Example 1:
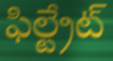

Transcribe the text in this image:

ఫిల్ట్రేట్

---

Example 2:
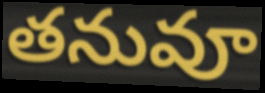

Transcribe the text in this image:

తనువూ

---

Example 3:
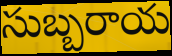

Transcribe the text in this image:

సుబ్బరాయ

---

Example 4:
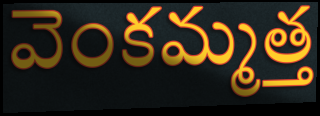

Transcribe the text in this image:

వెంకమ్మత్త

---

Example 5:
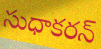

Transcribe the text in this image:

సుధాకరన్